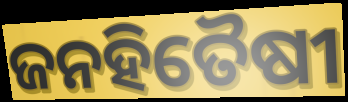
ଜନହିତୈଷୀ